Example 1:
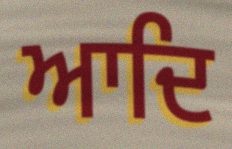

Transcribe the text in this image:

ਆਦਿ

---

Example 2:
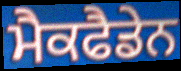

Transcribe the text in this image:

ਮੈਕਫੈਡੇਨ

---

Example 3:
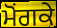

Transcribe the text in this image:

ਮੋਂਗਕੇ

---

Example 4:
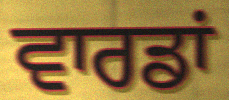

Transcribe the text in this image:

ਵਾਰਡਾਂ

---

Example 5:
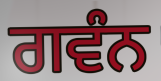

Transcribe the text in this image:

ਗਵੰਨ